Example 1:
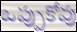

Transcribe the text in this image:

ఒప్పుకోవు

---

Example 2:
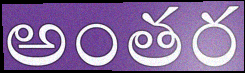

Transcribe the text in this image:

అంతర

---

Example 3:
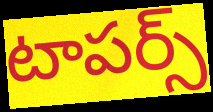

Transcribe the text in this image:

టాపర్స్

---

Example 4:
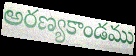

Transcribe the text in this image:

అరణ్యకాండము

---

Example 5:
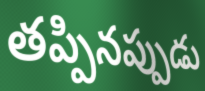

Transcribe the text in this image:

తప్పినప్పుడు